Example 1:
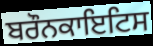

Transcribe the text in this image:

ਬਰੌਨਕਾਇਟਿਸ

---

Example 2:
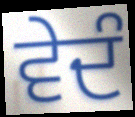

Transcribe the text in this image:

ਵੇਦੰ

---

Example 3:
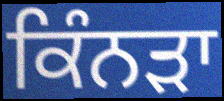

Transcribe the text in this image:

ਕਿੰਨੜਾ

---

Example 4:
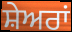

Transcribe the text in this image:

ਸ਼ੇਅਰਾਂ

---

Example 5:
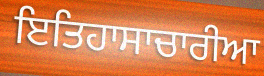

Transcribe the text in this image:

ਇਤਿਹਾਸਾਚਾਰੀਆ